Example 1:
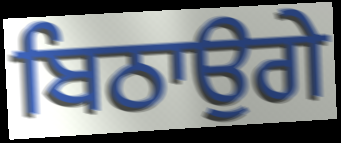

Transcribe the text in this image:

ਬਿਠਾਉਗੇ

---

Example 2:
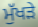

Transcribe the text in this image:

ਮੁੱਖੜੇ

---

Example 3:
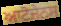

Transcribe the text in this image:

ਆਟੋਜੇਨਸ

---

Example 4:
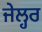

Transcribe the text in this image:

ਜੇਲ੍ਹਰ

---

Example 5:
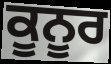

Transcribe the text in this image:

ਕੂਨੂਰ